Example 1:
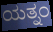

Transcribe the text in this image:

ಯತ್ನಂ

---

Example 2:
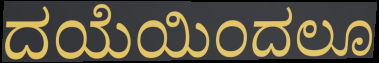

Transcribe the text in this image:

ದಯೆಯಿಂದಲೂ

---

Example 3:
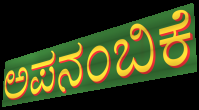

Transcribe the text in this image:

ಅಪನಂಬಿಕೆ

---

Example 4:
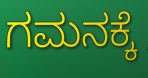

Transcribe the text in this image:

ಗಮನಕ್ಕೆ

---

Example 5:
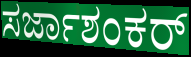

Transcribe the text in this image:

ಸರ್ಜಾಶಂಕರ್